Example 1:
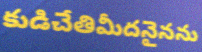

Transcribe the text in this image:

కుడిచేతిమీదనైనను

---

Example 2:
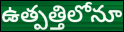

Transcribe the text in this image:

ఉత్పత్తిలోనూ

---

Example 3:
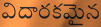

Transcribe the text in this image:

విదారకమైన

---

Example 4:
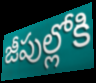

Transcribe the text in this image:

జీపుల్లోకి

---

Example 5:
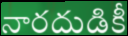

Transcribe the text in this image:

నారదుడికీ